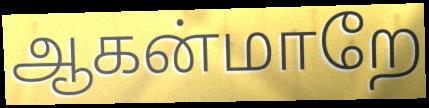
ஆகன்மாறே